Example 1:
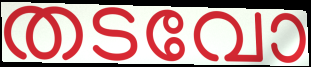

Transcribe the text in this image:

തടവോ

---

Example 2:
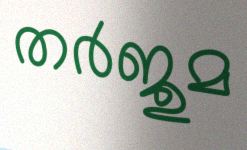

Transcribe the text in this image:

തർജുമ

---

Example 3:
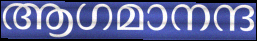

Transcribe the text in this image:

ആഗമാനന്ദ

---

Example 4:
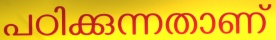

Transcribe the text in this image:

പഠിക്കുന്നതാണ്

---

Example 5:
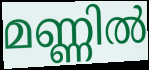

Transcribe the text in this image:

മണ്ണിൽ